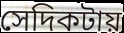
সেদিকটায়